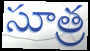
సూత్ర